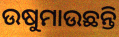
ଉଷୁମାଉଛନ୍ତି